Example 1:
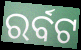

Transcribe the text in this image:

ରର୍ବଟ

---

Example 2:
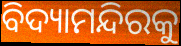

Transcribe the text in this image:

ବିଦ୍ୟାମନ୍ଦିରକୁ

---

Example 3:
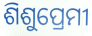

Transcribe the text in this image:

ଶିଶୁପ୍ରେମୀ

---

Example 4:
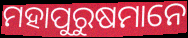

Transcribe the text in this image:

ମହାପୁରୁଷମାନେ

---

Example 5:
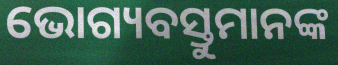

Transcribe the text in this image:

ଭୋଗ୍ୟବସ୍ତୁମାନଙ୍କ